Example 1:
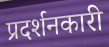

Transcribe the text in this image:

प्रदर्शनकारी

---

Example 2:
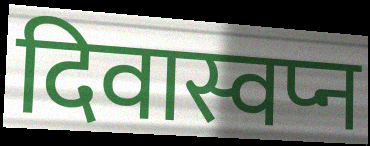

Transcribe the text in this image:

दिवास्‍वप्‍न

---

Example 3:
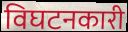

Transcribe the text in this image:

विघटनकारी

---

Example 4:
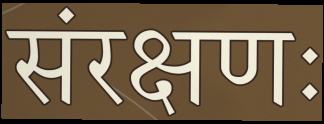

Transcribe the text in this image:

संरक्षणः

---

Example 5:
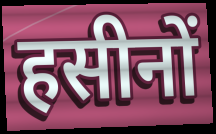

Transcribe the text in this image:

हसीनों